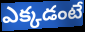
ఎక్కడంటే